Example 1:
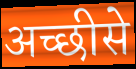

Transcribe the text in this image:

अच्छीसे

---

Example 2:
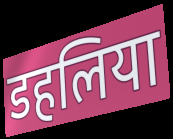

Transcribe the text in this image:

डहलिया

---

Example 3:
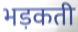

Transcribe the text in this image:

भड़कती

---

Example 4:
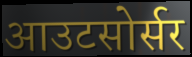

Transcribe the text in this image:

आउटसोर्सर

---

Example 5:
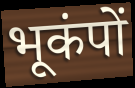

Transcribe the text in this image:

भूकंपों